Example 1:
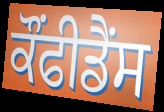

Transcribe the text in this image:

ਕੌਂਫੀਡੈਂਸ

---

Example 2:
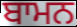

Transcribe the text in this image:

ਬਾਮਨ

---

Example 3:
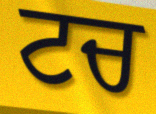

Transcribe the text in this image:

ਟਚ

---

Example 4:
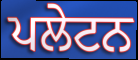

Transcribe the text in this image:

ਪਲੇਟਨ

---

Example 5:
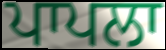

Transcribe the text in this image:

ਪਾਪਲਾ